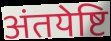
अंतयेष्टि